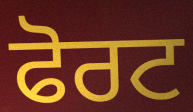
ਫੋਰਟ